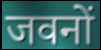
जवनों